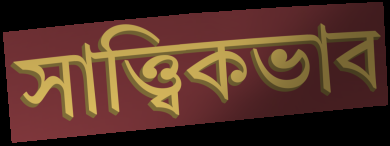
সাত্ত্বিকভাব